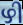
ഴി